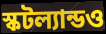
স্কটল্যান্ডও